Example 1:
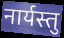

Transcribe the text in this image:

नार्यस्तु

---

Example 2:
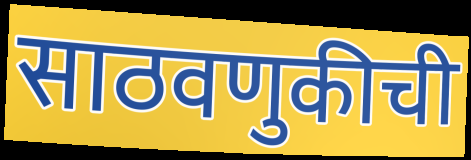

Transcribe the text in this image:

साठवणुकीची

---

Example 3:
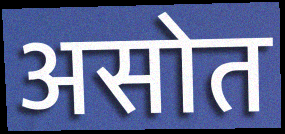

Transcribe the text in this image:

असोत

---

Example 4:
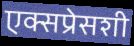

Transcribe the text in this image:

एक्सप्रेसशी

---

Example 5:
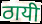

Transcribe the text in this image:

ठायी